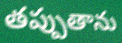
తప్పుతాను